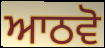
ਆਠਵੋ